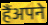
हैंअपने